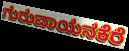
ಗುರುವಾಯನಕೆರೆ